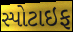
સ્પોટાઇફ